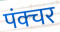
पंक्‍चर